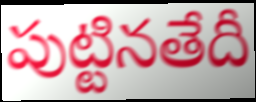
పుట్టినతేదీ